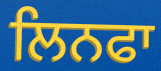
ਲਿਨਫਾ